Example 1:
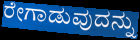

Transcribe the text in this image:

ರೇಗಾಡುವುದನ್ನು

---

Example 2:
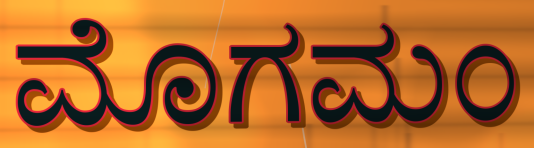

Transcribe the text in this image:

ಮೊಗಮಂ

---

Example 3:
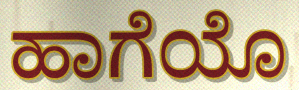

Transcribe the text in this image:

ಹಾಗೆಯೊ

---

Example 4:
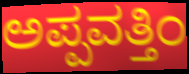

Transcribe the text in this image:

ಅಪ್ಪವತ್ತಿಂ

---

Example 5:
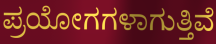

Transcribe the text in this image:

ಪ್ರಯೋಗಗಳಾಗುತ್ತಿವೆ